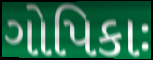
ગોપિકાઃ